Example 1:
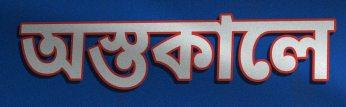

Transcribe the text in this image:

অস্তকালে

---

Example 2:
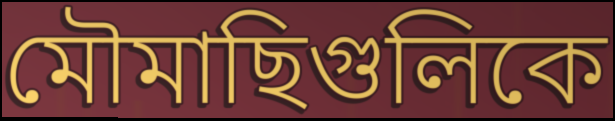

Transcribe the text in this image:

মৌমাছিগুলিকে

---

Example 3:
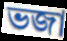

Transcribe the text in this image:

ভজা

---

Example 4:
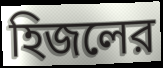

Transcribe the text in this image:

হিজলের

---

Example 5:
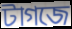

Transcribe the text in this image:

টাগজে